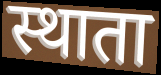
स्थाता